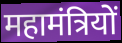
महामंत्रियों